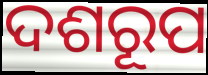
ଦଶରୂପ